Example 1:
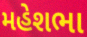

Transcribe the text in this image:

મહેશભા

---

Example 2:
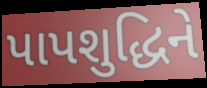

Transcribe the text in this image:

પાપશુદ્ધિને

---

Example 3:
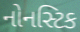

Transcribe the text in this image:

નોનસ્ટિક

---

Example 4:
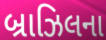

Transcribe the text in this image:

બ્રાઝિલના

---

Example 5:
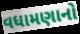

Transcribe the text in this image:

વધામણાનો